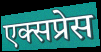
एक्‍सप्रेस